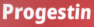
Progestin